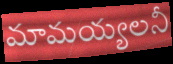
మామయ్యలనీ